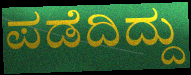
ಪಡೆದಿದ್ದು